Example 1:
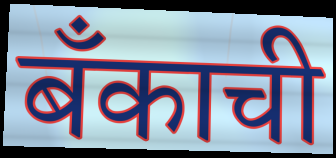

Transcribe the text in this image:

बँकाची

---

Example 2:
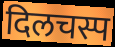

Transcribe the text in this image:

दिलचस्प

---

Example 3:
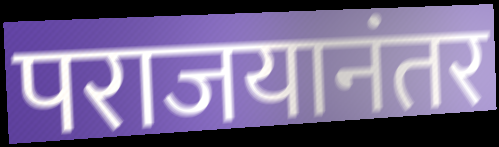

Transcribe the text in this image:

पराजयानंतर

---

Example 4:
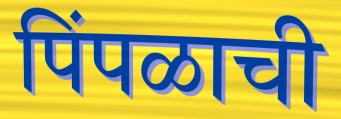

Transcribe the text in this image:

पिंपळाची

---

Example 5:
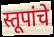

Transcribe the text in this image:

स्तूपांचे